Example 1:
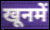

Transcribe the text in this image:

खूनमें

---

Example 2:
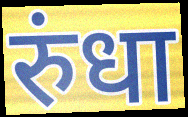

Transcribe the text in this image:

रुंधा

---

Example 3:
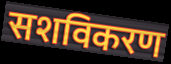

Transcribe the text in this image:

सशविकरण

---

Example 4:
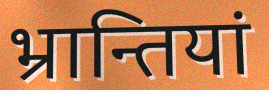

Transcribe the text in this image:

भ्रान्तियां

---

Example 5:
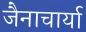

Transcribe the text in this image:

जैनाचार्या